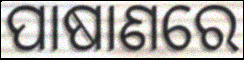
ପାଷାଣରେ